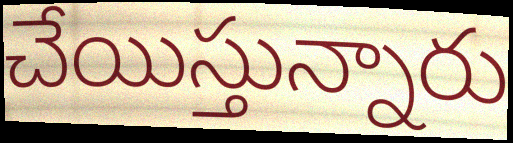
చేయిస్తున్నారు